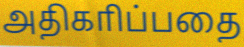
அதிகரிப்பதை